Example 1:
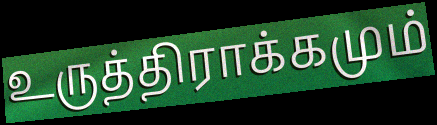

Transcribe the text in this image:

உருத்திராக்கமும்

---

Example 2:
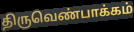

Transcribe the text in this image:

திருவெண்பாக்கம்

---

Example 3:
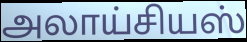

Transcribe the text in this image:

அலாய்சியஸ்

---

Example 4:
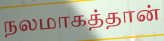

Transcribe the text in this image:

நலமாகத்தான்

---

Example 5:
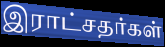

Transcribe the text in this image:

இராட்சதர்கள்